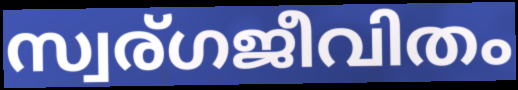
സ്വര്ഗജീവിതം